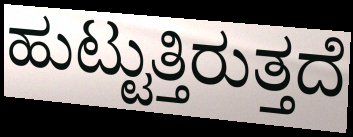
ಹುಟ್ಟುತ್ತಿರುತ್ತದೆ